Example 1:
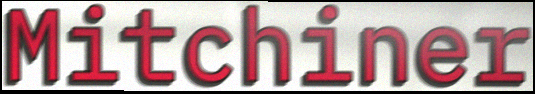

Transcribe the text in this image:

Mitchiner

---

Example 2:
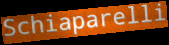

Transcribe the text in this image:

Schiaparelli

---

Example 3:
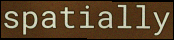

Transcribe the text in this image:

spatially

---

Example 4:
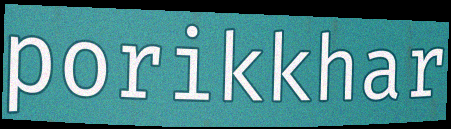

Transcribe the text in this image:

porikkhar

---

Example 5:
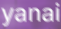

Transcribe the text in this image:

yanai